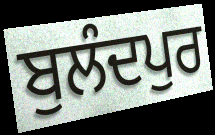
ਬੁਲੰਦਪੁਰ